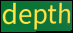
depth